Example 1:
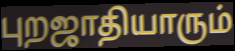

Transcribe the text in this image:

புறஜாதியாரும்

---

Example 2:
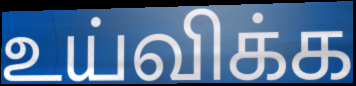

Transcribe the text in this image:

உய்விக்க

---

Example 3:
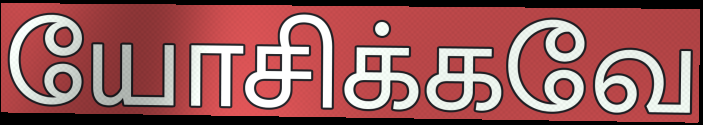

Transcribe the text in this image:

யோசிக்கவே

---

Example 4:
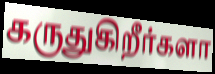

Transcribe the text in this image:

கருதுகிறீர்களா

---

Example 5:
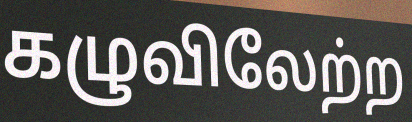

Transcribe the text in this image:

கழுவிலேற்ற